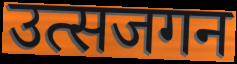
उत्सजगन